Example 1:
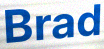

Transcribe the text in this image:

Brad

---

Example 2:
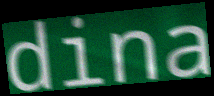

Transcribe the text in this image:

dina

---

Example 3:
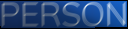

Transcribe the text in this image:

PERSON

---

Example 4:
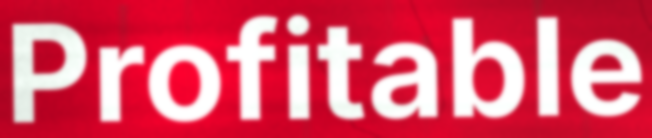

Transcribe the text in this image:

Profitable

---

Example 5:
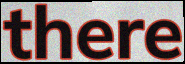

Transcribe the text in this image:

there